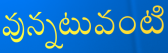
వున్నటువంటి